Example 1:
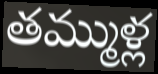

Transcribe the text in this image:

తమ్ముళ్ల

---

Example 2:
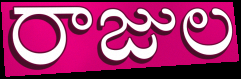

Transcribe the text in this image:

రాజుల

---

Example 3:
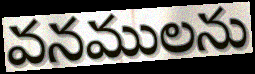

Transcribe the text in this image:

వనములను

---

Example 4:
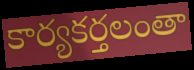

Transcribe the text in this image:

కార్యకర్తలంతా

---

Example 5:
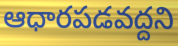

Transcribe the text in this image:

ఆధారపడవద్దని